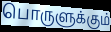
பொருளுக்கும்